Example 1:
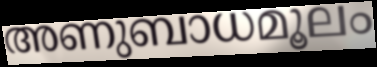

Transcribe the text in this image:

അണുബാധമൂലം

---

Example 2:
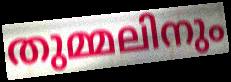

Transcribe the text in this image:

തുമ്മലിനും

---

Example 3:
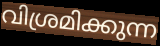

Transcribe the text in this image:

വിശ്രമിക്കുന്ന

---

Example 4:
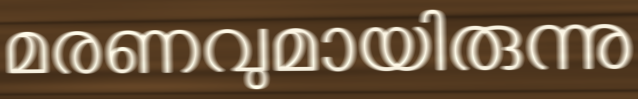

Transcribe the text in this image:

മരണവുമായിരുന്നു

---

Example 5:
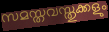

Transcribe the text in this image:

സമസ്തവസ്തുക്കളും